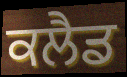
ਕਲੈਡ